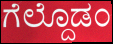
ಗೆಲ್ದೊಡಂ